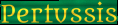
Pertussis